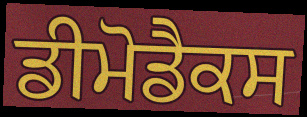
ਡੀਮੋਡੈਕਸ